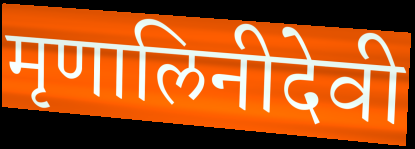
मृणालिनीदेवी